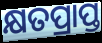
କ୍ଷତପ୍ରାପ୍ତ